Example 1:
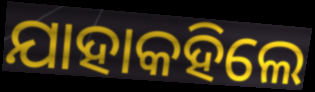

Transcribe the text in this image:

ଯାହାକହିଲେ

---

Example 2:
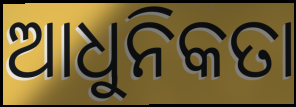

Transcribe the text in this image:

ଆଧୁନିକତା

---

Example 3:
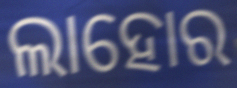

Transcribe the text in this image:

ଲାହୋର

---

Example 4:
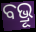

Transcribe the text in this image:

ବଭ୍ରୂ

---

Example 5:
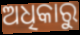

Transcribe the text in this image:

ଅଧିକାରୁ